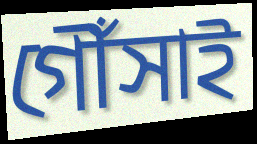
গৌঁসাই